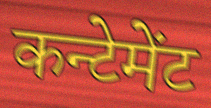
कन्टेमेंट